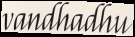
vandhadhu